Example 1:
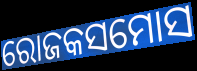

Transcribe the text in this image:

ରୋଜକସମୋସ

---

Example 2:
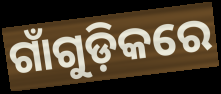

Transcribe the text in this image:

ଗାଁଗୁଡ଼ିକରେ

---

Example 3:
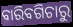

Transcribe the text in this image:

ବାରିବଗିଚାରୁ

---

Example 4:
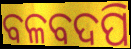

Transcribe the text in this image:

ବଳବଦପି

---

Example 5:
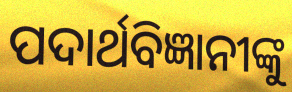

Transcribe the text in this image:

ପଦାର୍ଥବିଜ୍ଞାନୀଙ୍କୁ